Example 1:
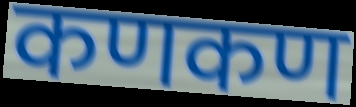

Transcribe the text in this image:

कणकण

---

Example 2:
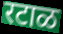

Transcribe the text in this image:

रटाळ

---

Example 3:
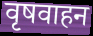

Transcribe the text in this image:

वृषवाहन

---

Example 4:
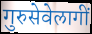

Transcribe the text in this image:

गुरुसेवेलागीं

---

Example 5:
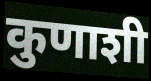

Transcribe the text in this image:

कुणाशी